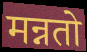
मन्नतो